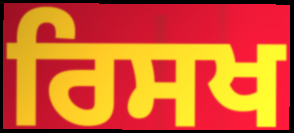
ਰਿਸਖ